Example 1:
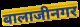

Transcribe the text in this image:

बालाजीनगर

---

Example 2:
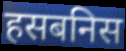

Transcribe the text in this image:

हसबनिस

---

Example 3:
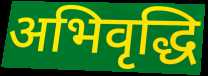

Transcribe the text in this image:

अभिवृद्धि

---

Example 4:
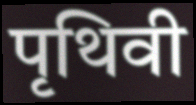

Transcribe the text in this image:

पृथिवी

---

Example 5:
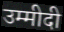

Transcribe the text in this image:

उम्मीदी